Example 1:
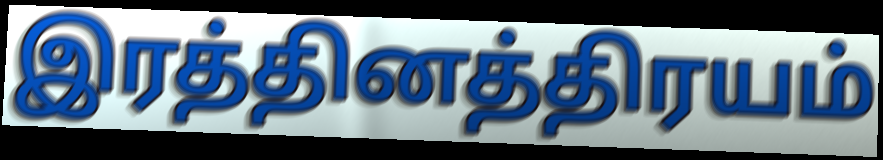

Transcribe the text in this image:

இரத்தினத்திரயம்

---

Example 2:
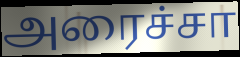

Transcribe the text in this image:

அரைச்சா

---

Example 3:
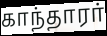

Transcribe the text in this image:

காந்தாரர்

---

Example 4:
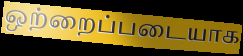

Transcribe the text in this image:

ஒற்றைப்படையாக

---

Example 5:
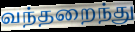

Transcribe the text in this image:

வந்தறைந்து